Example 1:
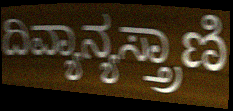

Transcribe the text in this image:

ದಿವ್ಯಾನ್ಯಸ್ತ್ರಾಣಿ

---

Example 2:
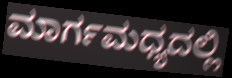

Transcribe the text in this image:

ಮಾರ್ಗಮಧ್ಯದಲ್ಲಿ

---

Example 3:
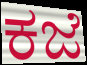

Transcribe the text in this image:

ಕಜೆ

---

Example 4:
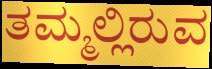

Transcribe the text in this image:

ತಮ್ಮಲ್ಲಿರುವ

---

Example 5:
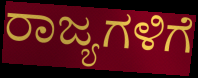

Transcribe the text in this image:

ರಾಜ್ಯಗಳಿಗೆ